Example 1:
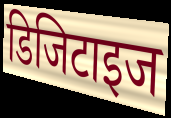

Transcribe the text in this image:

डिजिटाइज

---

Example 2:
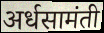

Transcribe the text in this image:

अर्धसामंती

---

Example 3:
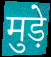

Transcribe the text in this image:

मुड़े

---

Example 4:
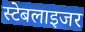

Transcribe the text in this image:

स्टेबलाइजर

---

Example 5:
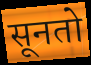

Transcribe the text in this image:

सूनतो